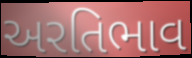
અરતિભાવ